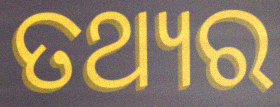
ତଥ୍ୟର